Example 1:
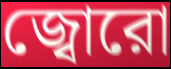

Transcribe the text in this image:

জ্বোরো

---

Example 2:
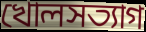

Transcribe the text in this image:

খোলসত্যাগ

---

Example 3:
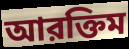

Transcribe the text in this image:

আরক্তিম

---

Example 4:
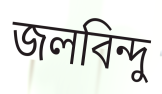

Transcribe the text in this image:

জলবিন্দু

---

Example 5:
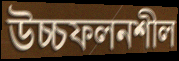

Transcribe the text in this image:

উচ্চফলনশীল